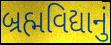
બ્રહ્મવિદ્યાનું